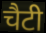
चैटी